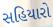
સહિયારો